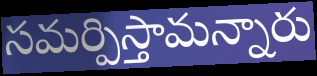
సమర్పిస్తామన్నారు